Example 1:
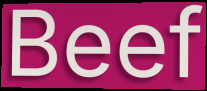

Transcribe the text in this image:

Beef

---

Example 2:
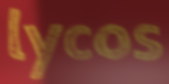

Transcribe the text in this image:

lycos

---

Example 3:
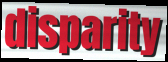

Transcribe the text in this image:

disparity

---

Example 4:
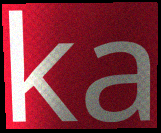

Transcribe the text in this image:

ka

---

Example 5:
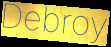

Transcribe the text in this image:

Debroy